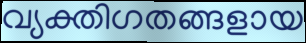
വ്യക്തിഗതങ്ങളായ